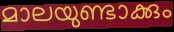
മാലയുണ്ടാക്കും